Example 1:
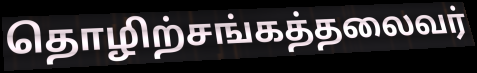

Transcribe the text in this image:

தொழிற்சங்கத்தலைவர்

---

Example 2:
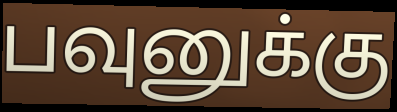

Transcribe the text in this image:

பவுனுக்கு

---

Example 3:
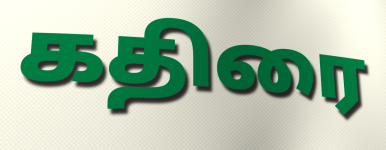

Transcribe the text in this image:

கதிரை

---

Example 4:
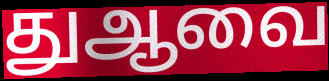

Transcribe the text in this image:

துஆவை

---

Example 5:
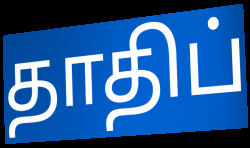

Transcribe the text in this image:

தாதிப்